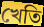
খেতি